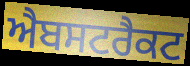
ਐਬਸਟਰੈਕਟ